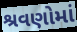
શ્રવણોમાં